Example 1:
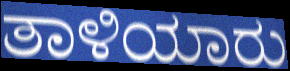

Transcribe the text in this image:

ತಾಳಿಯಾರು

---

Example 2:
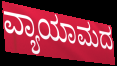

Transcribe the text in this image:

ವ್ಯಾಯಾಮದ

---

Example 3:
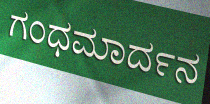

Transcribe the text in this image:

ಗಂಧಮಾರ್ದನ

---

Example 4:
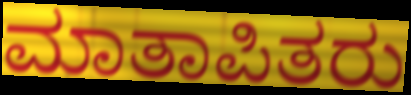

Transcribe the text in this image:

ಮಾತಾಪಿತರು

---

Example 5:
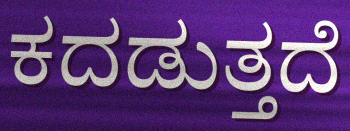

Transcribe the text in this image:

ಕದಡುತ್ತದೆ